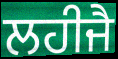
ਲਹੀਜੈ